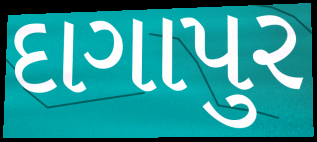
દાગાપુર